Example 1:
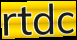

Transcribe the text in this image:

rtdc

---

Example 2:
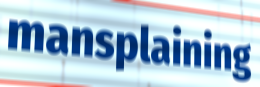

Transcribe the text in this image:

mansplaining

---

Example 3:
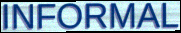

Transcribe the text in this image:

INFORMAL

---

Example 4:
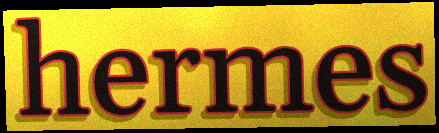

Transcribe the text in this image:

hermes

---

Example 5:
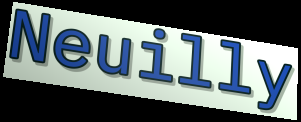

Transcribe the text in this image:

Neuilly